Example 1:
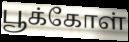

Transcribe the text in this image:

பூக்கோள்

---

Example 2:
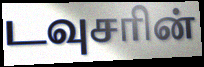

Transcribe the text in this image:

டவுசரின்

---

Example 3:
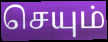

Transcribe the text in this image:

செயும்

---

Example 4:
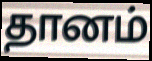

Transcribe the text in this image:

தானம்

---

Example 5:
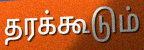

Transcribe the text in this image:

தரக்கூடும்